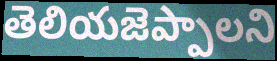
తెలియజెప్పాలని